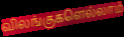
விலங்குகளெல்லாம்